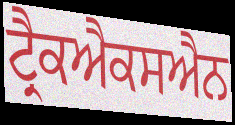
ਟ੍ਰੈਕਐਕਸਐਨ